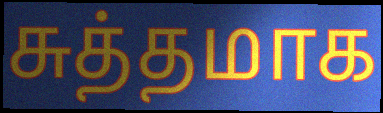
சுத்தமாக